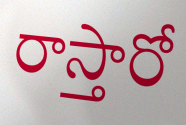
రాస్తారో